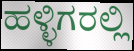
ಹಳ್ಳಿಗರಲ್ಲಿ